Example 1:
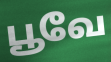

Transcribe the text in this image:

பூவே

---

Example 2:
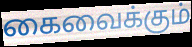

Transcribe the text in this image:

கைவைக்கும்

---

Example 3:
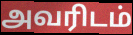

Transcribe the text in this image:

அவரிடம்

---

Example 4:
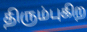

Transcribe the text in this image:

திரும்புகிற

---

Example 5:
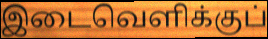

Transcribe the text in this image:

இடைவெளிக்குப்